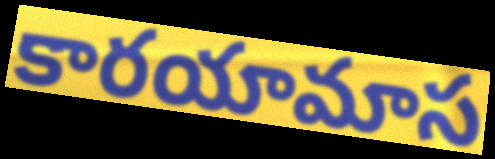
కారయామాస